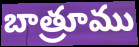
బాత్రూము